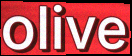
olive